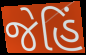
જેહિં